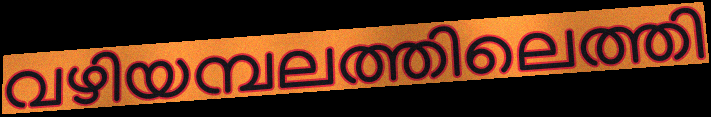
വഴിയമ്പലത്തിലെത്തി